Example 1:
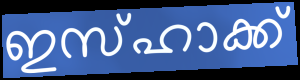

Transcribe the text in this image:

ഇസ്ഹാക്ക്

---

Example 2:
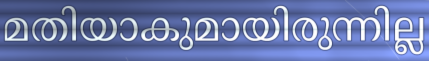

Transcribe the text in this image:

മതിയാകുമായിരുന്നില്ല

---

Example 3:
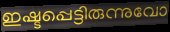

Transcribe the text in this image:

ഇഷ്ടപ്പെട്ടിരുന്നുവോ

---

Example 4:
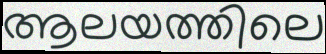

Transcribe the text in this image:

ആലയത്തിലെ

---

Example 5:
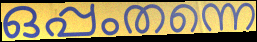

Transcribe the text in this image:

ഒപ്പംതന്നെ